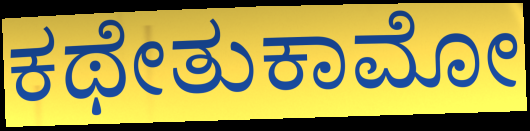
ಕಥೇತುಕಾಮೋ